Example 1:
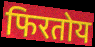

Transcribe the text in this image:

फिरतोय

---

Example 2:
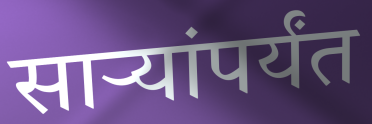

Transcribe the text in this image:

साऱ्यांपर्यंत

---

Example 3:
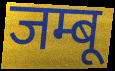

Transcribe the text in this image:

जम्बू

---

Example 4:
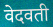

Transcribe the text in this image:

वेदवती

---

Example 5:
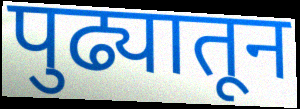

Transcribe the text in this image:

पुढ्यातून